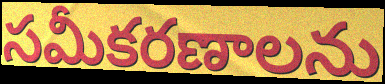
సమీకరణాలను